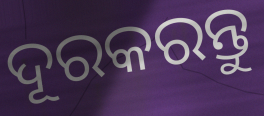
ଦୂରକରନ୍ତୁ